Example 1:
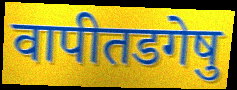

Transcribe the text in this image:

वापीतडगेषु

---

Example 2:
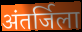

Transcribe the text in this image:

अंतर्जिला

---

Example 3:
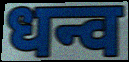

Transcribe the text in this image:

धन्व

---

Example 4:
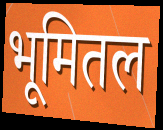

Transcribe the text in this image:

भूमितल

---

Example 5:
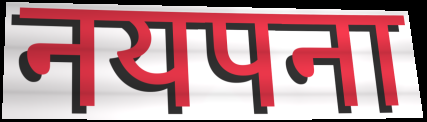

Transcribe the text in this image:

नयपना